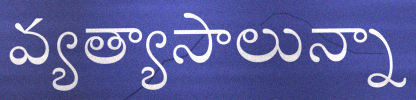
వ్యత్యాసాలున్నా